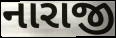
નારાજી